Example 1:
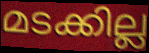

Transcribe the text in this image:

മടക്കില്ല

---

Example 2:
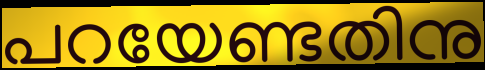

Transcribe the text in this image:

പറയേണ്ടതിനു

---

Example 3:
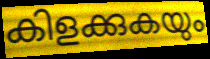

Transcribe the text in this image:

കിളക്കുകയും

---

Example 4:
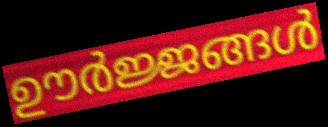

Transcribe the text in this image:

ഊർജ്ജങ്ങൾ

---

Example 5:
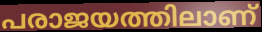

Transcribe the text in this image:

പരാജയത്തിലാണ്